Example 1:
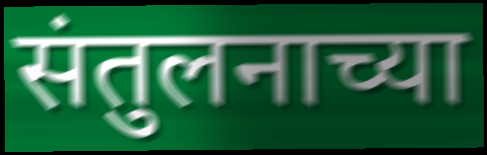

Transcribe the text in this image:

संतुलनाच्या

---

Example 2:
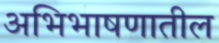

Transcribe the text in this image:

अभिभाषणातील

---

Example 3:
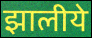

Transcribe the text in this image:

झालीये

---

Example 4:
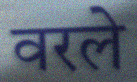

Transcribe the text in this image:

वरले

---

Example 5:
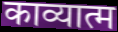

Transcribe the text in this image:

काव्यात्म